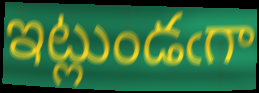
ఇట్లుండఁగా